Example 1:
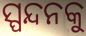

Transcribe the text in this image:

ସ୍ପନ୍ଦନକୁ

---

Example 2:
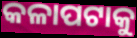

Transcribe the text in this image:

କଳାପଟାକୁ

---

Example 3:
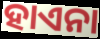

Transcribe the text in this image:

ହାଏନା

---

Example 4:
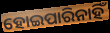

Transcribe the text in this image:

ହୋଇପାରିନାହିଁ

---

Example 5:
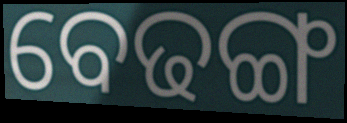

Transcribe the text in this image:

ବେଢଙ୍ଗ